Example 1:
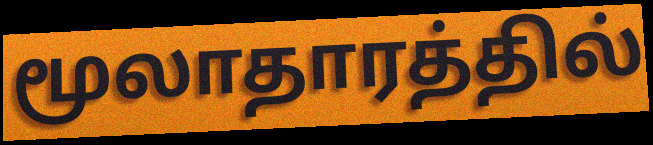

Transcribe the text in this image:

மூலாதாரத்தில்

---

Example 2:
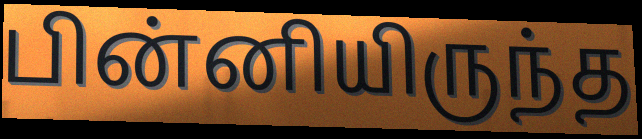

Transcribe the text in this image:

பின்னியிருந்த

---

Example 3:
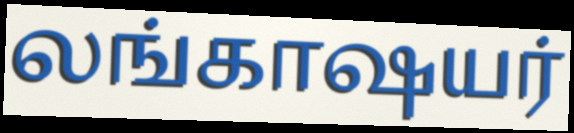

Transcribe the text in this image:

லங்காஷயர்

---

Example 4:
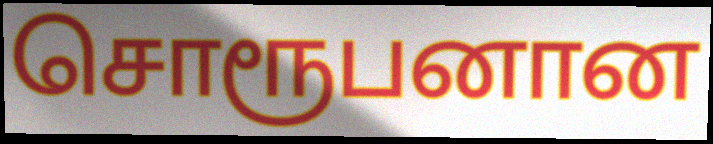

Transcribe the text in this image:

சொரூபனான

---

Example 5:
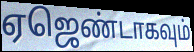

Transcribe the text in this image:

ஏஜெண்டாகவும்